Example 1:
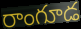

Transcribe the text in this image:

రాంగూడ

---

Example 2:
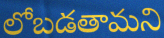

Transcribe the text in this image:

లోబడతామని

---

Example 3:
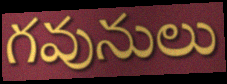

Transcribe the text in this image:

గవునులు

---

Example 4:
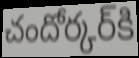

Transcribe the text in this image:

చందోర్కర్‌కి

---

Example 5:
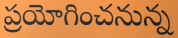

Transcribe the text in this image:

ప్రయోగించనున్న